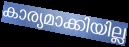
കാര്യമാക്കിയില്ല